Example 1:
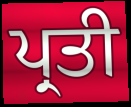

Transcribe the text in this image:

ਪ੍ਰਤੀ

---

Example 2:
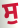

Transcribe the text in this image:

ਸੁ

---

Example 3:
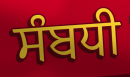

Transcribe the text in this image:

ਸੰਬਧੀ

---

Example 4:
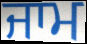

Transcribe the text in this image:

ਜਾਮ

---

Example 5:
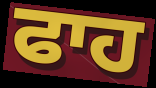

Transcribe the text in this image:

ਫਾਹ